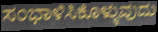
ಸಂಭಾಳಿಸಿಕೊಳ್ಳುವುದು